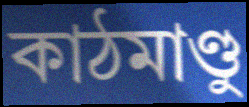
কাঠমাণ্ডু